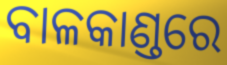
ବାଳକାଣ୍ଡରେ